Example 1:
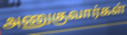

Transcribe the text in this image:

அணுகுவார்கள்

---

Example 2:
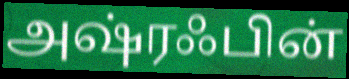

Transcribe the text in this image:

அஷ்ரஃபின்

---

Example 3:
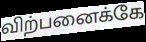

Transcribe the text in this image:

விற்பனைக்கே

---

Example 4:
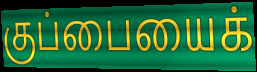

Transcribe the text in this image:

குப்பையைக்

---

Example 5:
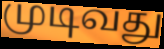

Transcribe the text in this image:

முடிவது